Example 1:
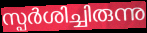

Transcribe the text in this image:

സ്പർശിച്ചിരുന്നു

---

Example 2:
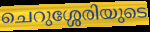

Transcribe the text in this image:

ചെറുശ്ശേരിയുടെ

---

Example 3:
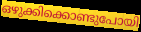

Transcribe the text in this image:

ഒഴുക്കിക്കൊണ്ടുപോയി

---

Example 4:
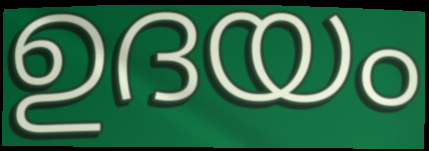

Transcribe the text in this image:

ഉദയം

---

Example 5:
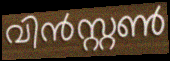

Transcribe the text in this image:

വിൻസ്റ്റൺ